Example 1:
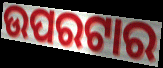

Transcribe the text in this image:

ଉପରଟାର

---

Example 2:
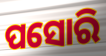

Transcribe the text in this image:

ପସୋରି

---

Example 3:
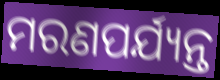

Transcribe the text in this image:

ମରଣପର୍ଯ୍ୟନ୍ତ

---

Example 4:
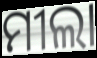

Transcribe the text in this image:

ମୀଲା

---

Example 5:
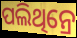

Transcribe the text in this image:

ପଲିଥିନ୍ରେ